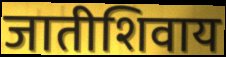
जातीशिवाय